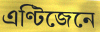
এণ্টিজেনে